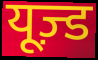
यूज़्ड